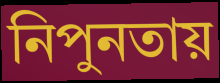
নিপুনতায়